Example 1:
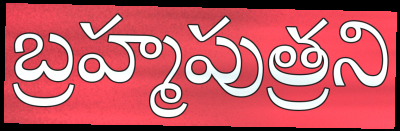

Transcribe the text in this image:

బ్రహ్మపుత్రని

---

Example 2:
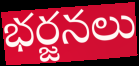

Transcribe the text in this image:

భర్జనలు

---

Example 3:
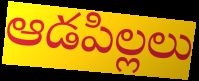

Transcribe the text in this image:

ఆడపిల్లలు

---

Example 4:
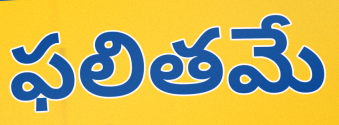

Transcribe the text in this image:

ఫలితమే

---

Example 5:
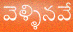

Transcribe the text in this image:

వెళ్ళినవే